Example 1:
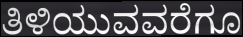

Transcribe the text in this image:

ತಿಳಿಯುವವರೆಗೂ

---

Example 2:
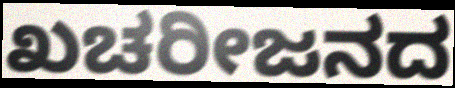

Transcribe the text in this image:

ಖಚರೀಜನದ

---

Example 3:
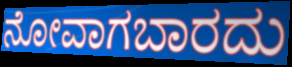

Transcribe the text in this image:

ನೋವಾಗಬಾರದು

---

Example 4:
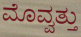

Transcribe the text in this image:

ಮೊವ್ವತ್ತು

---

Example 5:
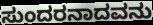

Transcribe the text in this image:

ಸುಂದರನಾದವನು